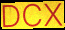
DCX